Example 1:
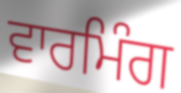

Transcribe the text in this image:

ਵਾਰਮਿੰਗ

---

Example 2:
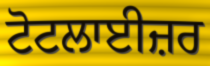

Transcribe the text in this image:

ਟੋਟਲਾਈਜ਼ਰ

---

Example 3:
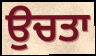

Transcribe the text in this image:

ਉਚਤਾ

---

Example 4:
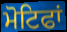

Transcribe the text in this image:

ਮੋਟਿਫਾਂ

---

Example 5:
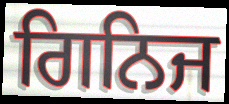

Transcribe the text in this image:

ਗਿਨਿਜ